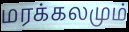
மரக்கலமும்